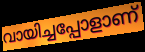
വായിച്ചപ്പോളാണ്